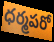
ధర్మపరో